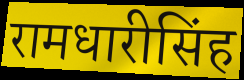
रामधारीसिंह